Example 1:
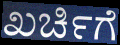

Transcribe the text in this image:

ಖರ್ಚಿಗೆ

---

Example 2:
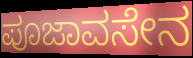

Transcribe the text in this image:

ಪೂಜಾವಸೇನ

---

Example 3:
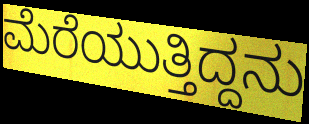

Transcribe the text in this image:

ಮೆರೆಯುತ್ತಿದ್ದನು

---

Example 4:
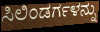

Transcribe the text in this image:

ಸಿಲಿಂಡರ್ಗಳನ್ನು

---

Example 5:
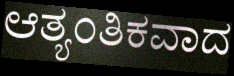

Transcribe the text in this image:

ಆತ್ಯಂತಿಕವಾದ